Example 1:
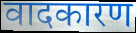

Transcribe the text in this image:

वादकारण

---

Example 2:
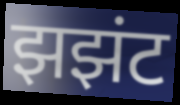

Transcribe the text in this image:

झझंट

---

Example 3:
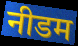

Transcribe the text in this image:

नीडम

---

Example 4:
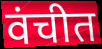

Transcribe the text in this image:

वंचीत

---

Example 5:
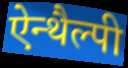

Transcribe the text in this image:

ऐन्थैल्पी